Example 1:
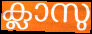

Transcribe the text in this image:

ക്ലാസു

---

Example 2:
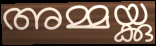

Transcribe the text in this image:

അമ്മയ്ക്കു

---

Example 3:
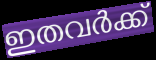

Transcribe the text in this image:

ഇതവർക്ക്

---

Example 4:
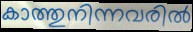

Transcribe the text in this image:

കാത്തുനിന്നവരിൽ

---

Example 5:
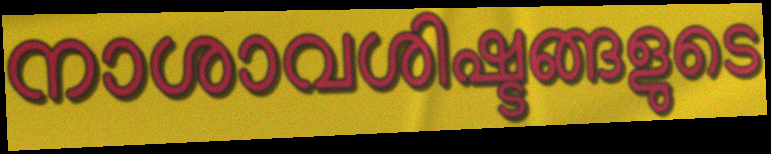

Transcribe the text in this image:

നാശാവശിഷ്ടങ്ങളുടെ